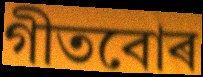
গীতবোৰ